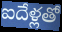
ఐదేళ్లతో